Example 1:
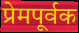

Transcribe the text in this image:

प्रेमपूर्वक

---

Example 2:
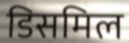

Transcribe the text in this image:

डिसमिल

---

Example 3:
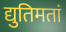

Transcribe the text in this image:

द्युतिमतां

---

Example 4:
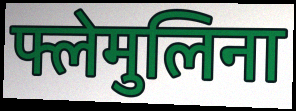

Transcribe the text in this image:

फ्लेमुलिना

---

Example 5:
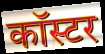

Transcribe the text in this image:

कॉस्टर